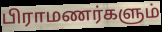
பிராமணர்களும்